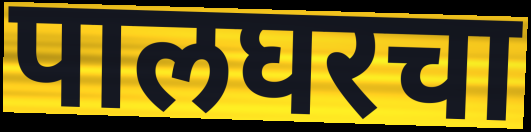
पालघरचा